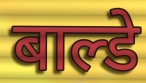
बाल्डे